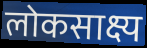
लोकसाक्ष्य